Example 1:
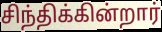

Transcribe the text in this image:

சிந்திக்கின்றார்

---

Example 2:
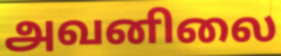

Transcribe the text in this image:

அவனிலை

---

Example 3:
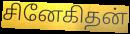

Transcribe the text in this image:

சினேகிதன்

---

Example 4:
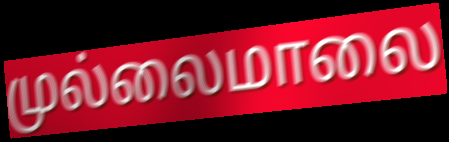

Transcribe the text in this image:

முல்லைமாலை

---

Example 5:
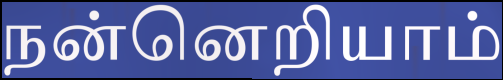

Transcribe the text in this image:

நன்னெறியாம்